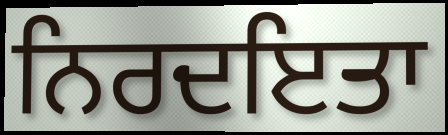
ਨਿਰਦਇਤਾ